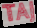
TAJ